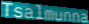
Tsalmunna